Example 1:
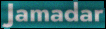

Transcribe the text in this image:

Jamadar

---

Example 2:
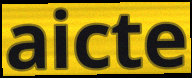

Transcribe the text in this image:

aicte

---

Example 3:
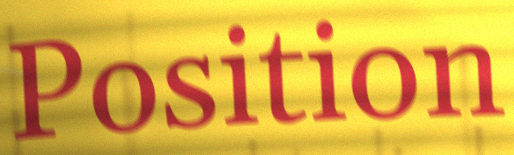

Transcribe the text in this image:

Position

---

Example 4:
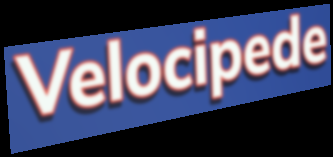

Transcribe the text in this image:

Velocipede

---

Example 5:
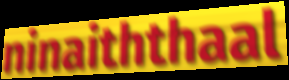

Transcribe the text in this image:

ninaiththaal